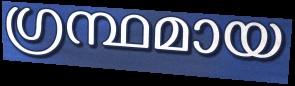
ഗ്രന്ഥമായ